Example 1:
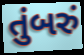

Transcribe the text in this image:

તુંબરું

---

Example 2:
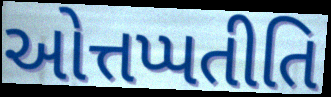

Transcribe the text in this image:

ઓત્તપ્પતીતિ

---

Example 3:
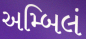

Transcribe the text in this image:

અમ્બિલં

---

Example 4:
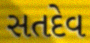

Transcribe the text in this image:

સતદેવ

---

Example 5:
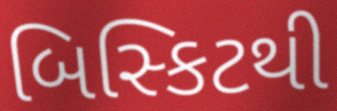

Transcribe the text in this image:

બિસ્કિટથી